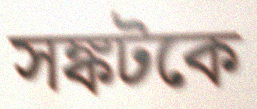
সঙ্কটকে